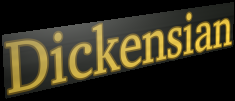
Dickensian